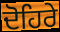
ਦੋਹਿਰੇ